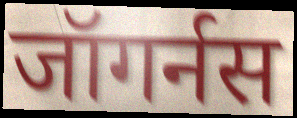
जॉगर्नस